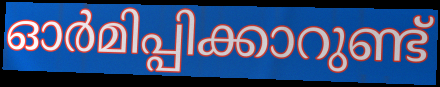
ഓർമിപ്പിക്കാറുണ്ട്